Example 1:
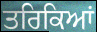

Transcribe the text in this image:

ਤਰਿਕਿਆਂ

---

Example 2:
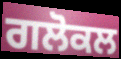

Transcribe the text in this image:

ਗਲੋਕਲ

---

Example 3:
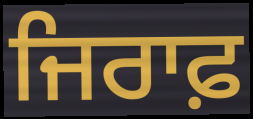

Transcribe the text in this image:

ਜਿਰਾਫ਼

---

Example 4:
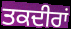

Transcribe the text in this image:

ਤਕਦੀਰਾਂ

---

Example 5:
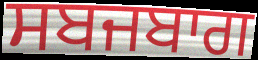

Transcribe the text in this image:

ਸਬਜਬਾਗ